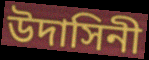
উদাসিনী